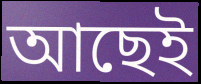
আছেই